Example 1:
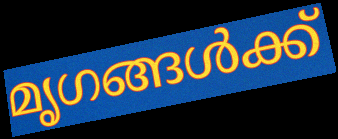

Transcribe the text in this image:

മൃഗങ്ങൾക്ക്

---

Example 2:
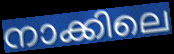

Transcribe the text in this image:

നാക്കിലെ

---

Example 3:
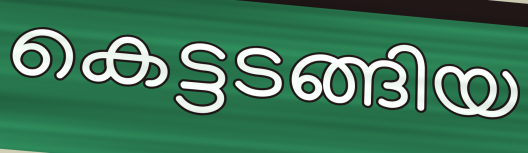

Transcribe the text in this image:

കെട്ടടങ്ങിയ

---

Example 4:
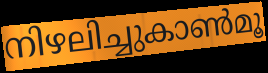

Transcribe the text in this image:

നിഴലിച്ചുകാൺമൂ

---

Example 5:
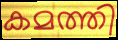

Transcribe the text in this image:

കമത്തി